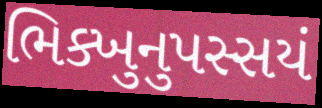
ભિક્ખુનુપસ્સયં